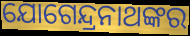
ଯୋଗେନ୍ଦ୍ରନାଥଙ୍କର